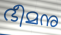
ഭീമനു